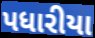
પધારીયા